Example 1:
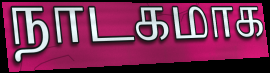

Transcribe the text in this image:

நாடகமாக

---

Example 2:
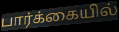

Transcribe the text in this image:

பார்க்கையில்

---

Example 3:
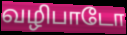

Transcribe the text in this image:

வழிபாடோ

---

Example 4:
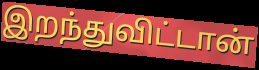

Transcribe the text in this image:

இறந்துவிட்டான்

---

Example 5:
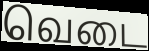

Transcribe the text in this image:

வெடை